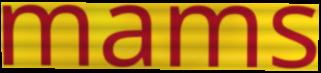
mams